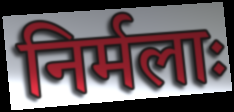
निर्मलाः